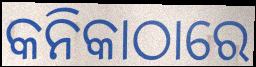
କନିକାଠାରେ